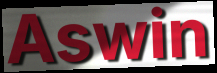
Aswin